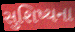
સુશિષ્યના